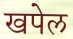
खपेल